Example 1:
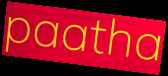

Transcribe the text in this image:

paatha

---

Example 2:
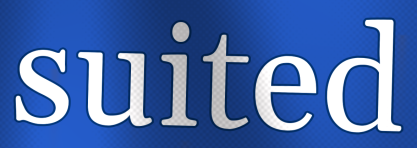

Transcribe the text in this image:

suited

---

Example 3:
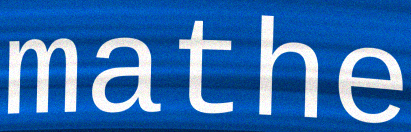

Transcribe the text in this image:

mathe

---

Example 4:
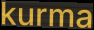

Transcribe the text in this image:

kurma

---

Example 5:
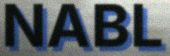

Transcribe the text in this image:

NABL